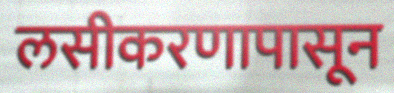
लसीकरणापासून